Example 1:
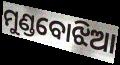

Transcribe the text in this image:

ମୁଣ୍ଡବୋଝିଆ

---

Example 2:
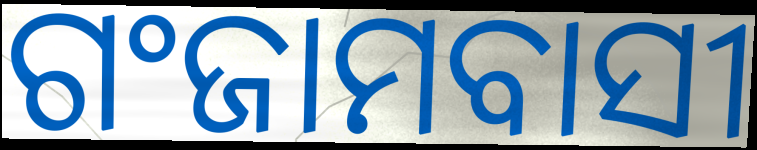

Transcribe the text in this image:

ଗଂଜାମବାସୀ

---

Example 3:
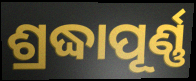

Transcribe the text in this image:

ଶ୍ରଦ୍ଧାପୂର୍ଣ୍ଣ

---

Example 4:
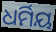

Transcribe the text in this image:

ଧର୍ମିୟ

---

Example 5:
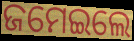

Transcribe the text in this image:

ଜମେଇଲେ